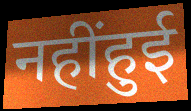
नहींहुई